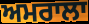
ਅਮਰਾਲਾ